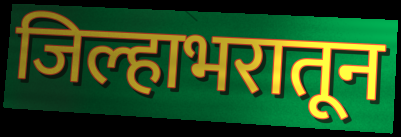
जिल्हाभरातून